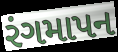
રંગમાપન